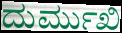
ದುರ್ಮುಖಿ